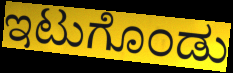
ಇಟುಗೊಂಡು